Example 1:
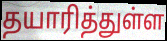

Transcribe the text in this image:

தயாரித்துள்ள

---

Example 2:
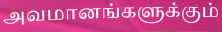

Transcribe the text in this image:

அவமானங்களுக்கும்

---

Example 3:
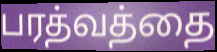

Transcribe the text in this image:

பரத்வத்தை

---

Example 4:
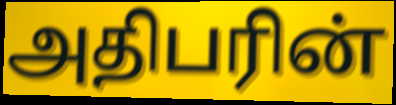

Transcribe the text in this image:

அதிபரின்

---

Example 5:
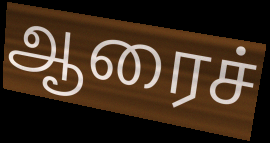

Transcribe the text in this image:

ஆரைச்